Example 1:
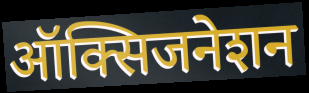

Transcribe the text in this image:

ऑक्सिजनेशन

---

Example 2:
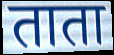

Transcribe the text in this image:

ताता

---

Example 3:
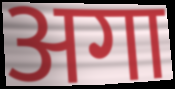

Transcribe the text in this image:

अगा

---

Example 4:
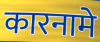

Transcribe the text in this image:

कारनामे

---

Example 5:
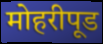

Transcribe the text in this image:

मोहरीपूड